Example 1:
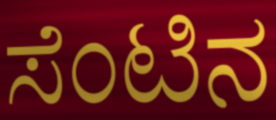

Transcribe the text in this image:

ಸೆಂಟಿನ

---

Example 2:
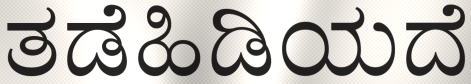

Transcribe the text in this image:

ತಡೆಹಿಡಿಯದೆ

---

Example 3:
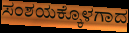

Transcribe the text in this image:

ಸಂಶಯಕ್ಕೊಳಗಾದ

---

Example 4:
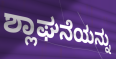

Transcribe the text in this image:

ಶ್ಲಾಘನೆಯನ್ನು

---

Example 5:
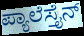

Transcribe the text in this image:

ಪ್ಯಾಲೆಸ್ತೈನ್